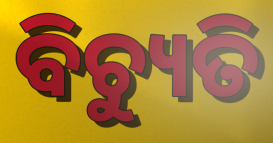
ବିଚ୍ୟୁତି